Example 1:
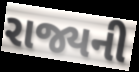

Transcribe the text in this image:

રાજ્યની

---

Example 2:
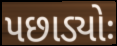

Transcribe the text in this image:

પછાડ્યોઃ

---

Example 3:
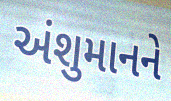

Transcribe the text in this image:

અંશુમાનને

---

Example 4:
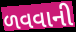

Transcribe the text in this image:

ળવવાની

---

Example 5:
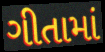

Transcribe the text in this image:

ગીતામાં